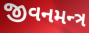
જીવનમન્ત્ર